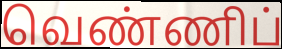
வெண்ணிப்